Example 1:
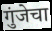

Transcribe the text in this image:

गुंजेचा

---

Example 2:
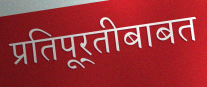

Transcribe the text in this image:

प्रतिपूर्तीबाबत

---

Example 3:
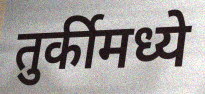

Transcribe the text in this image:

तुर्कीमध्ये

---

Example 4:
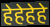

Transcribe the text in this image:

हेहेहेहे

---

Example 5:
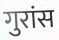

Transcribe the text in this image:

गुरांस